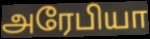
அரேபியா